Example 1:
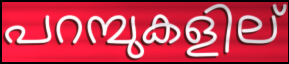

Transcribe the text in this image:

പറമ്പുകളില്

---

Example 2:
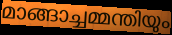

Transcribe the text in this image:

മാങ്ങാച്ചമ്മന്തിയും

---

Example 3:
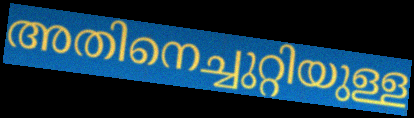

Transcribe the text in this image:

അതിനെച്ചുറ്റിയുള്ള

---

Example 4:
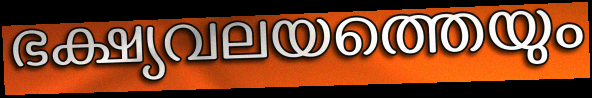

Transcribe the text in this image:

ഭക്ഷ്യവലയത്തെയും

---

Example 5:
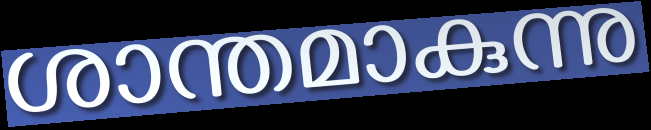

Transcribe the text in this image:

ശാന്തമാകുന്നു